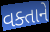
વક્તાને